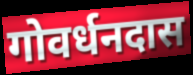
गोवर्धनदास